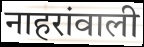
नाहरांवाली